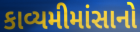
કાવ્યમીમાંસાનો